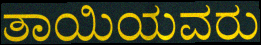
ತಾಯಿಯವರು